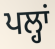
ਪਲ੍ਹਾਂ